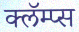
क्लॅम्प्स